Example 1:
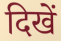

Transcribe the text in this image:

दिखें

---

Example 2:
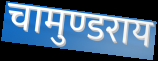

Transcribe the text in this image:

चामुण्डराय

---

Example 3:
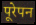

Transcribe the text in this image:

पूरेपन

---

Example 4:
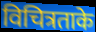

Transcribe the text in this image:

विचित्रताके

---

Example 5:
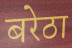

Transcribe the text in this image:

बरेठा